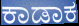
ಕಾಡಾಕ